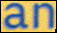
an